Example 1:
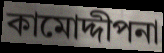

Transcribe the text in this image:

কামোদ্দীপনা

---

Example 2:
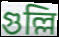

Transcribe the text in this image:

গুল্লি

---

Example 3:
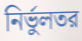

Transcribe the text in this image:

নির্ভুলতর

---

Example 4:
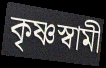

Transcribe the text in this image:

কৃষ্ণস্বামী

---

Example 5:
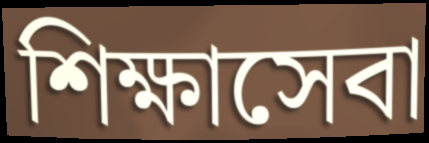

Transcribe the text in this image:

শিক্ষাসেবা